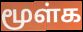
மூள்க